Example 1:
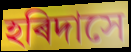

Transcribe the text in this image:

হৰিদাসে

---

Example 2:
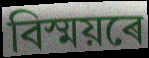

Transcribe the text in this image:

বিস্ময়ৰে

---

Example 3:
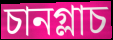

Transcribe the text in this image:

চানগ্লাচ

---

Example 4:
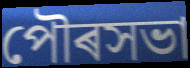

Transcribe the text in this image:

পৌৰসভা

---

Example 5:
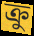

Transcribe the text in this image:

ক্ৰু